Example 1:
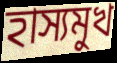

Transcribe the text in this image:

হাস্যমুখ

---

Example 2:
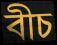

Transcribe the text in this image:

বীচ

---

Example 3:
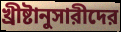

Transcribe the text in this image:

খ্রীষ্টানুসারীদের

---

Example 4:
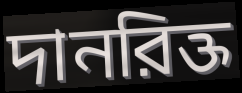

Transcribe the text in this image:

দানরিক্ত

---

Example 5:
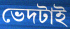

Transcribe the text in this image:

ভেদটাই